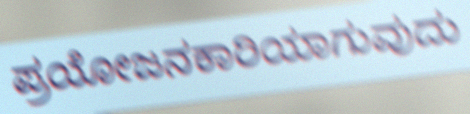
ಪ್ರಯೋಜನಕಾರಿಯಾಗುವುದು